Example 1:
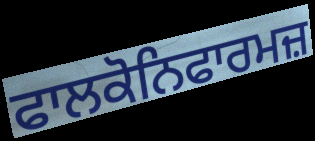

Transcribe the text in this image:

ਫਾਲਕੋਨਿਫਾਰਮਜ਼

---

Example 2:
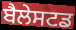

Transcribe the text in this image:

ਬੈਲੇਸਟਡ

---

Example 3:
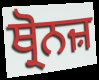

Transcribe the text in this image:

ਥ੍ਰੋਨਜ਼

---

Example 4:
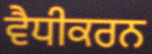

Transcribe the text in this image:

ਵੈਧੀਕਰਨ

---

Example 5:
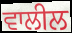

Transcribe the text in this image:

ਵਾਲੀਲ